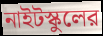
নাইটস্কুলের